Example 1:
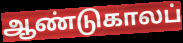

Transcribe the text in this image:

ஆண்டுகாலப்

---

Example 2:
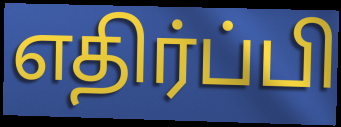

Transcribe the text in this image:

எதிர்ப்பி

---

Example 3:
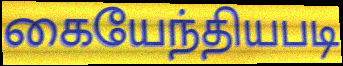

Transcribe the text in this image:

கையேந்தியபடி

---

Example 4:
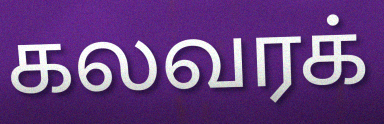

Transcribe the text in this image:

கலவரக்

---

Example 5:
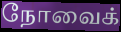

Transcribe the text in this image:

நோவைக்